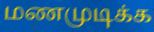
மணமுடிக்க